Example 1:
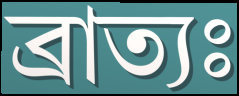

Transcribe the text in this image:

ব্রাত্যঃ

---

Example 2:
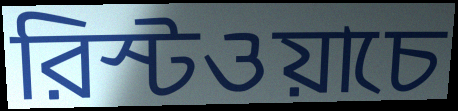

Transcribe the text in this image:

রিস্টওয়াচে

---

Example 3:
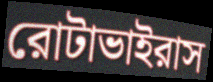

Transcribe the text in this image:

রোটাভাইরাস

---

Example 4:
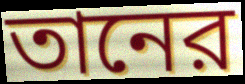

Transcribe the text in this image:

তানের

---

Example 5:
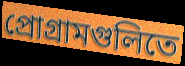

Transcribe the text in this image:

প্রোগ্রামগুলিতে